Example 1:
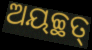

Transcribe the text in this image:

ଅୟଚ୍ଛତ୍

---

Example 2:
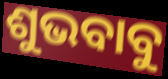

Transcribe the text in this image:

ଶୁଭବାବୁ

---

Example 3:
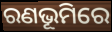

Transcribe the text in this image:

ରଣଭୂମିରେ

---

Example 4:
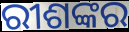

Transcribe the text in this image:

ରୀଶଙ୍କର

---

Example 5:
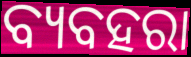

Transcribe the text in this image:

ବ୍ୟବହରା